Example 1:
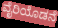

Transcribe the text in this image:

ವೈರಿಯೊಡನೆ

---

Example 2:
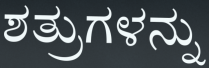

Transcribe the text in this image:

ಶತ್ರುಗಳನ್ನು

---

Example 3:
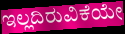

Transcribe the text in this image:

ಇಲ್ಲದಿರುವಿಕೆಯೇ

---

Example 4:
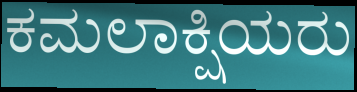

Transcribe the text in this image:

ಕಮಲಾಕ್ಷಿಯರು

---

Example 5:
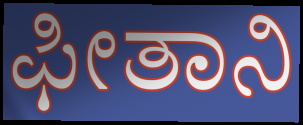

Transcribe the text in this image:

ಫೀತಾನಿ